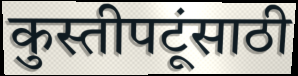
कुस्तीपटूंसाठी